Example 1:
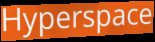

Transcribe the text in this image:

Hyperspace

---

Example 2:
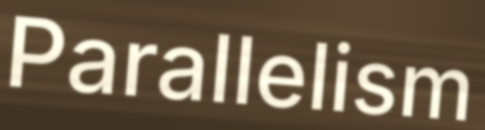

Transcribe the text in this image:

Parallelism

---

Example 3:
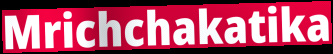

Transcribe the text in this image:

Mrichchakatika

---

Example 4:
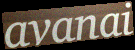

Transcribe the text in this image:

avanai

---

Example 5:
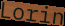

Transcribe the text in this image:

Lorin